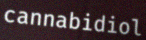
cannabidiol